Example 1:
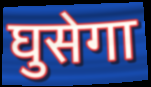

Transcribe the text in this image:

घुसेगा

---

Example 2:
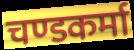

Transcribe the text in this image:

चण्डकर्मा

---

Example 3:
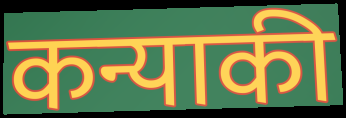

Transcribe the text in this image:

कन्याकी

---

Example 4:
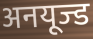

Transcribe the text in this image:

अनयूज्ड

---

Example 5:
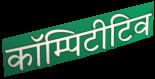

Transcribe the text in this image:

कॉम्पिटीटिव